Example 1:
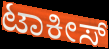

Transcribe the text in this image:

ಟಾಕೀಸ್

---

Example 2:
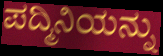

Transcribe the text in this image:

ಪದ್ಮಿನಿಯನ್ನು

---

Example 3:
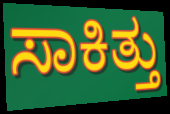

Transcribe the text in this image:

ಸಾಕಿತ್ತು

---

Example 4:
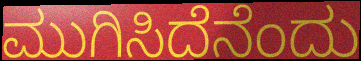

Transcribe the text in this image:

ಮುಗಿಸಿದೆನೆಂದು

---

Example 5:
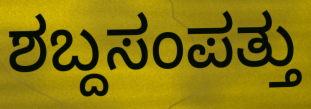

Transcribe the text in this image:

ಶಬ್ದಸಂಪತ್ತು